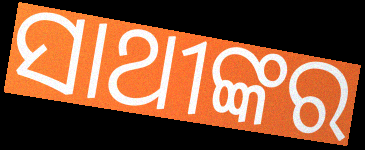
ସାଥୀଙ୍କର